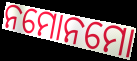
ନମୋନମୋ